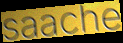
saache